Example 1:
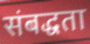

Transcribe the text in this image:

संबद्धता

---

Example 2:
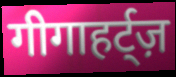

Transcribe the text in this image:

गीगाहर्ट्ज़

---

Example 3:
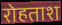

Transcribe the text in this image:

रोहताश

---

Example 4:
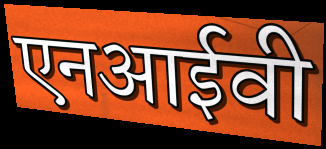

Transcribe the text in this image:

एनआईवी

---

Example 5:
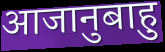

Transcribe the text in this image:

आजानुबाहु